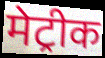
मेट्रीक